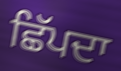
ਛਿੱਪਦਾ